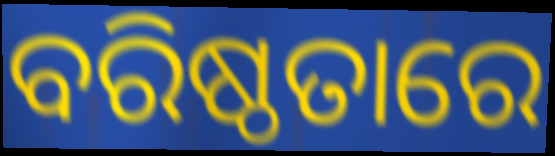
ବରିଷ୍ଠତାରେ